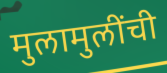
मुलामुलींची